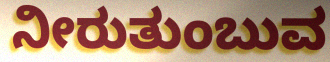
ನೀರುತುಂಬುವ